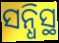
ସନ୍ଧିସ୍ଥ